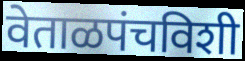
वेताळपंचविशी